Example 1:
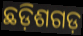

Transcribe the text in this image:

ଛଡ଼ିଶଗଡ଼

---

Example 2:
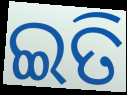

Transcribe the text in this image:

ଇତି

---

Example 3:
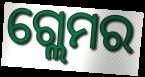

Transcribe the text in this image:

ଗ୍ଲେମର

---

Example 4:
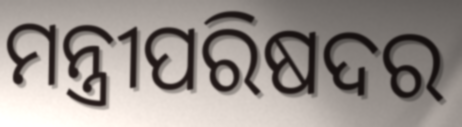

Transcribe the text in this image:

ମନ୍ତ୍ରୀପରିଷଦର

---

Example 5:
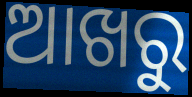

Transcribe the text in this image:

ଆଖରୁ